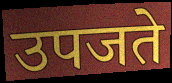
उपजते